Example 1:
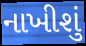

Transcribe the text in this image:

નાખીશું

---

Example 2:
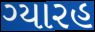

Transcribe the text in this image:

ગ્યારહ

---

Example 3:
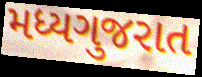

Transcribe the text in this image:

મધ્યગુજરાત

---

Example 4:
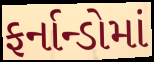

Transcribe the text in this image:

ફર્નાન્ડોમાં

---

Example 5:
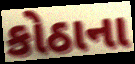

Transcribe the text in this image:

કોઠાના